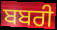
ਬਬਰੀ